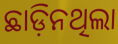
ଛାଡ଼ିନଥିଲା